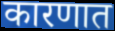
कारणात